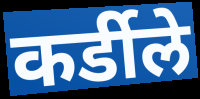
कर्डीले